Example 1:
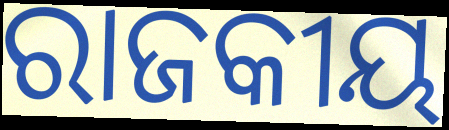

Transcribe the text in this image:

ରାଜକୀୟ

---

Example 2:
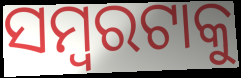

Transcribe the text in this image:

ସମ୍ବରଟାକୁ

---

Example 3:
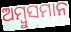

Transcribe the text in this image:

ଅମ୍ବୁସମାନ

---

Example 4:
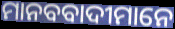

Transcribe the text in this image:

ମାନବବାଦୀମାନେ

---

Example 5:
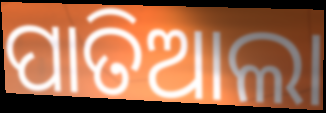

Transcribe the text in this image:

ପାତିଆଲା